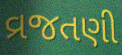
વ્રજતણી